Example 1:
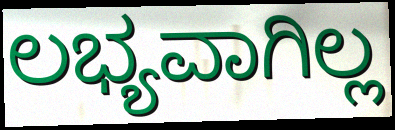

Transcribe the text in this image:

ಲಭ್ಯವಾಗಿಲ್ಲ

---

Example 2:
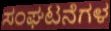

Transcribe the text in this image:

ಸಂಘಟನೆಗಳ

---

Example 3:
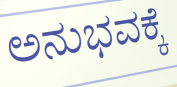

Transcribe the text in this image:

ಅನುಭವಕ್ಕೆ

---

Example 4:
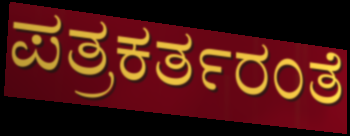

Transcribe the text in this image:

ಪತ್ರಕರ್ತರಂತೆ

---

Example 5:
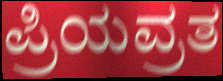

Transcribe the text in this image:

ಪ್ರಿಯವ್ರತ